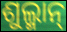
ଶୁଲ୍ମାନ୍